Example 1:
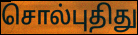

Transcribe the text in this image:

சொல்புதிது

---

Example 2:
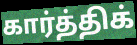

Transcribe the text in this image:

கார்த்திக்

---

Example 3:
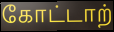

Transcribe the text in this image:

கோட்டாற்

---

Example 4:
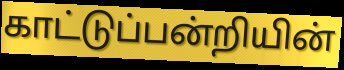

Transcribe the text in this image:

காட்டுப்பன்றியின்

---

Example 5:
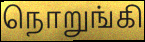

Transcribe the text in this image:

நொறுங்கி